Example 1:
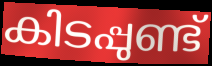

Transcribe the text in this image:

കിടപ്പുണ്ട്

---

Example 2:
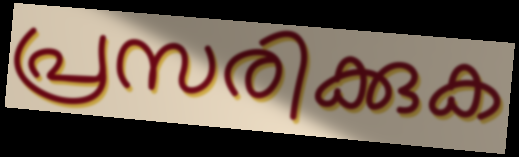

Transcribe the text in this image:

പ്രസരിക്കുക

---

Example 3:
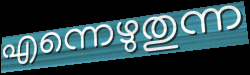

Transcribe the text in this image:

എന്നെഴുതുന്ന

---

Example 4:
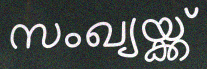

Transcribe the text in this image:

സംഖ്യയ്ക്ക്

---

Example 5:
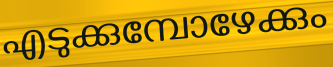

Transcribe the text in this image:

എടുക്കുമ്പോഴേക്കും